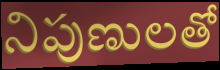
నిపుణులతో